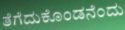
ತೆಗೆದುಕೊಂಡನೆಂದು